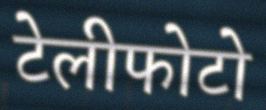
टेलीफोटो